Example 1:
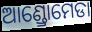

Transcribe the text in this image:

ଆଣ୍ଡ୍ରୋମେଡା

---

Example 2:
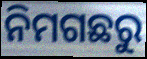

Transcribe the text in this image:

ନିମଗଛରୁ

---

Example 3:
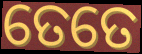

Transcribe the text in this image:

ତେତେ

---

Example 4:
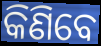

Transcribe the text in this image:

କିଣିବେ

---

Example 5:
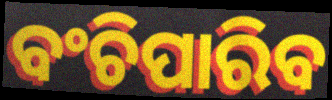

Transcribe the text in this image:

ବଂଚିପାରିବ